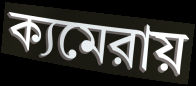
ক্যমেরায়